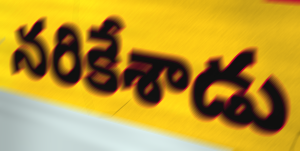
నరికేశాడు